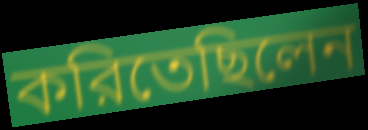
করিতেছিলেন